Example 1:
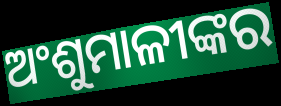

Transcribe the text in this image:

ଅଂଶୁମାଳୀଙ୍କର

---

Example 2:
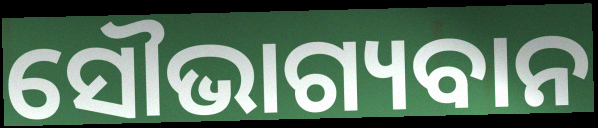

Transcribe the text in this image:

ସୌଭାଗ୍ୟବାନ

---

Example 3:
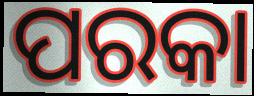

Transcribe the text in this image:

ପରକା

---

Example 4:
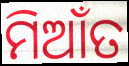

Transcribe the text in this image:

ମିଆଁତ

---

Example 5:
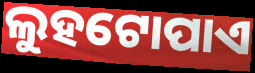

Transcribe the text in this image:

ଲୁହଟୋପାଏ